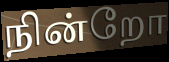
நின்றோ